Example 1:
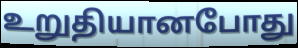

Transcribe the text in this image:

உறுதியானபோது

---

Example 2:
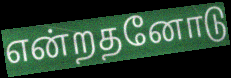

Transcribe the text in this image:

என்றதனோடு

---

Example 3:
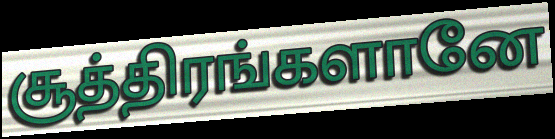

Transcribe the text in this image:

சூத்திரங்களானே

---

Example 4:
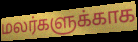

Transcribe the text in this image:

மலர்களுக்காக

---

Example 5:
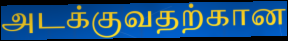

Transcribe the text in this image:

அடக்குவதற்கான